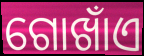
ଗୋଖାଁଏ